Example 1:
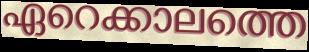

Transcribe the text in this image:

ഏറെക്കാലത്തെ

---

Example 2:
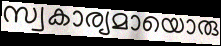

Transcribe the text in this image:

സ്വകാര്യമായൊരു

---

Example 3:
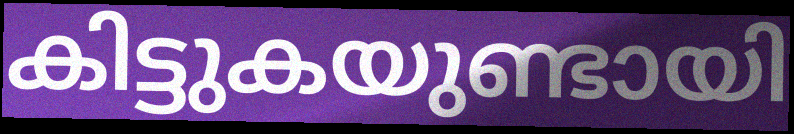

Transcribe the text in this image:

കിട്ടുകയുണ്ടായി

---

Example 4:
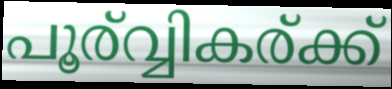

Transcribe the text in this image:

പൂര്വ്വികര്ക്ക്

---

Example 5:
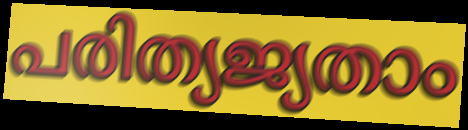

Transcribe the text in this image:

പരിത്യജ്യതാം